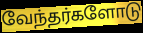
வேந்தர்களோடு